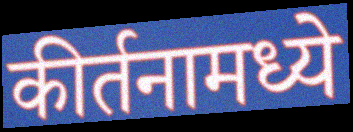
कीर्तनामध्ये